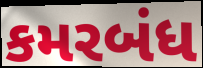
કમરબંધ